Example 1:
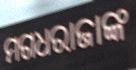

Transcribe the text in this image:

ମଗଧରାଜାଙ୍କ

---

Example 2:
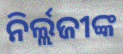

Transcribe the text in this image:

ନିର୍ଲ୍ଲଜୀଙ୍କ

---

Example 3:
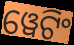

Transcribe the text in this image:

ୱେଟିଂ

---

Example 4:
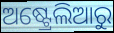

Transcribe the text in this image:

ଅଷ୍ଟ୍ରେଲିଆରୁ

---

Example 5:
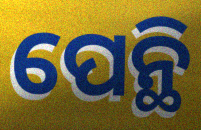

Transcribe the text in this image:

ପେନ୍ଥି